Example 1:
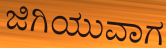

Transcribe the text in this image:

ಜಿಗಿಯುವಾಗ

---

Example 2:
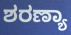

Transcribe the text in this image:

ಶರಣ್ಯಾ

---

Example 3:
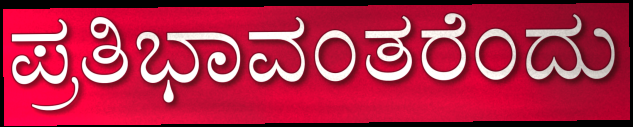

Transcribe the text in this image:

ಪ್ರತಿಭಾವಂತರೆಂದು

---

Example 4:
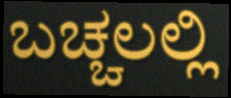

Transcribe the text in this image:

ಬಚ್ಚಲಲ್ಲಿ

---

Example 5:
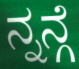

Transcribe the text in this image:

ನ್ನನ್ಗೆ